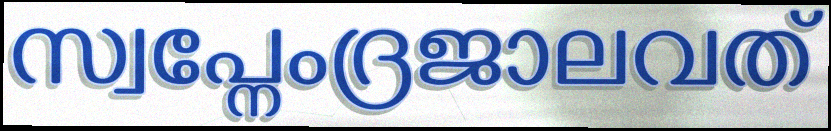
സ്വപ്നേംദ്രജാലവത്